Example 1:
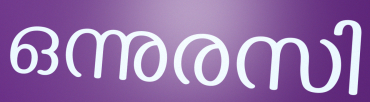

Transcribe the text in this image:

ഒന്നുരസി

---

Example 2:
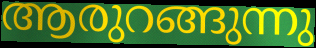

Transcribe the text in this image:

ആരുറങ്ങുന്നു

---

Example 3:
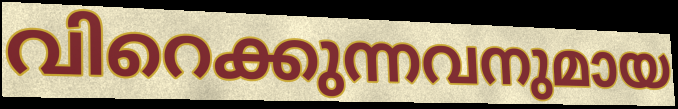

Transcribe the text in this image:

വിറെക്കുന്നവനുമായ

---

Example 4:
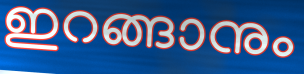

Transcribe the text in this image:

ഇറങ്ങാനും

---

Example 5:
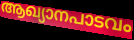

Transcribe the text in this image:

ആഖ്യാനപാടവം